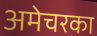
अमेचरका